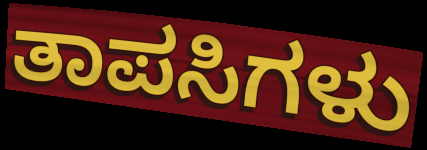
ತಾಪಸಿಗಳು